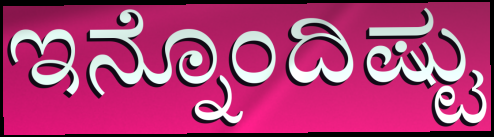
ಇನ್ನೊಂದಿಷ್ಟು